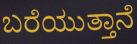
ಬರೆಯುತ್ತಾನೆ